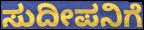
ಸುದೀಪನಿಗೆ